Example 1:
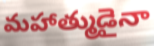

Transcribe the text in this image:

మహాత్ముడైనా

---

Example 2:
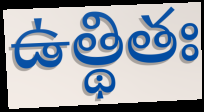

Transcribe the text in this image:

ఉత్థితః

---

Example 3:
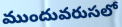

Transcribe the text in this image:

ముందువరుసలో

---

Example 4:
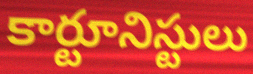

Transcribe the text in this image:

కార్టూనిస్టులు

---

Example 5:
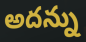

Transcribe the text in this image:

అదన్ను